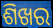
ଶିଖର